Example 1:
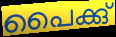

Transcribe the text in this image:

പൈക്കു്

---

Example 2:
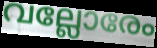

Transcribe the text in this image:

വല്ലോരേം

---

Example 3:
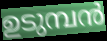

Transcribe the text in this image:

ഉടുമ്പൻ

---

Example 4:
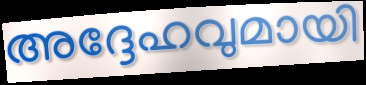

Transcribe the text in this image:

അദ്ദേഹവുമായി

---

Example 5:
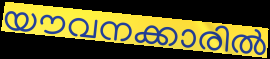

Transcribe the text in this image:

യൗവനക്കാരിൽ